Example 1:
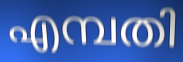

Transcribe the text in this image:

എമ്പതി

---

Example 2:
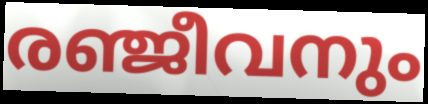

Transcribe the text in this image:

രഞ്ജീവനും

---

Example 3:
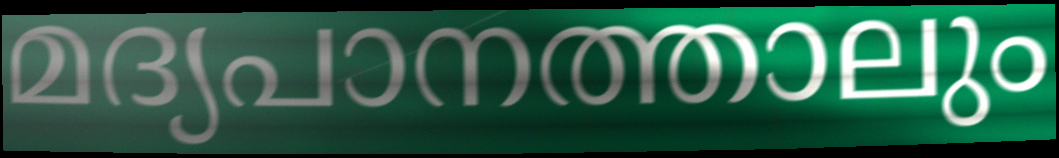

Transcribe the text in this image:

മദ്യപാനത്താലും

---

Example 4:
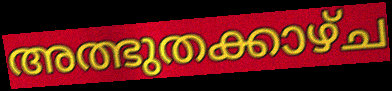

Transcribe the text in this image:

അത്ഭുതക്കാഴ്ച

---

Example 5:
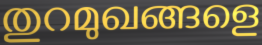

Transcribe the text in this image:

തുറമുഖങ്ങളെ